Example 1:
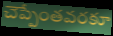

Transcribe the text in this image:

చెప్పేంతవరకూ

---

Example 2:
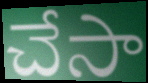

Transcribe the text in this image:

చేసా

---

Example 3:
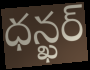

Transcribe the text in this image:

ధన్ఖర్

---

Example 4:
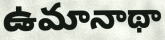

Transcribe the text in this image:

ఉమానాథా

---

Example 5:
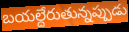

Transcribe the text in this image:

బయల్దేరుతున్నప్పుడు